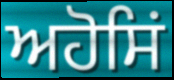
ਅਹੋਸਿਂ